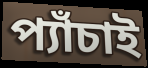
প্যাঁচাই